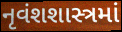
નૃવંશશાસ્ત્રમાં